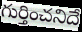
గుర్తించనిదే